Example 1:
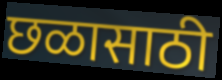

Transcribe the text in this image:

छळासाठी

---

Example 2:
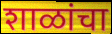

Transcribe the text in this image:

शाळांचा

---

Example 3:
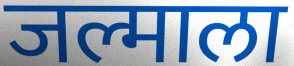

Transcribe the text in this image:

जल्माला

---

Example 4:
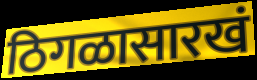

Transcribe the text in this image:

ठिगळासारखं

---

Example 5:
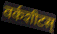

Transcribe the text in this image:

वर्कशीटस्